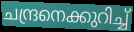
ചന്ദ്രനെക്കുറിച്ച്